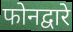
फोनद्वारे